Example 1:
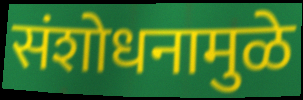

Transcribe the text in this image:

संशोधनामुळे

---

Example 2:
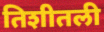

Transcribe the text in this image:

तिशीतली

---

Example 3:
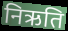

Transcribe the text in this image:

निऋति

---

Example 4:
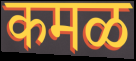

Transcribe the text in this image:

कमळ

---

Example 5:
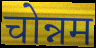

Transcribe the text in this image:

चोन्नम